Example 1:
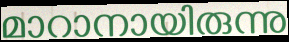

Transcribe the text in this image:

മാറാനായിരുന്നു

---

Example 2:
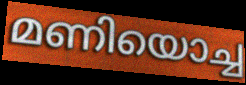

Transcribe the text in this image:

മണിയൊച്ച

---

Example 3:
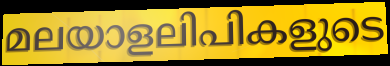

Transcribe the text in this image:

മലയാളലിപികളുടെ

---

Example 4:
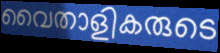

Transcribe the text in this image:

വൈതാളികരുടെ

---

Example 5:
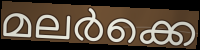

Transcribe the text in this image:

മലർക്കെ